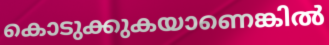
കൊടുക്കുകയാണെങ്കിൽ